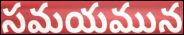
సమయమున